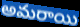
అమరాయి